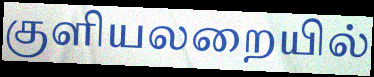
குளியலறையில்